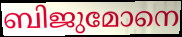
ബിജുമോനെ